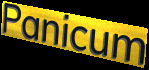
Panicum